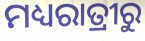
ମଧ୍ୟରାତ୍ରୀରୁ